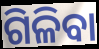
ଗିଳିବା